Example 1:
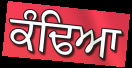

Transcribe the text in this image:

ਕੰਢਿਆ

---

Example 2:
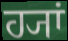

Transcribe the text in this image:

ਹ੍ਯਾਂ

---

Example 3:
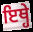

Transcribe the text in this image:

ਇਥ੍ਹੇ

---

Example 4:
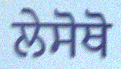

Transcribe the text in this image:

ਲੇਸੋਥੋ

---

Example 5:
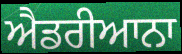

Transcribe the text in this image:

ਐਡਰੀਆਨਾ